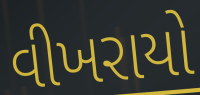
વીખરાયો